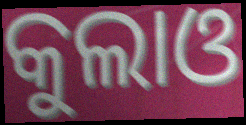
କୁଲାଓ